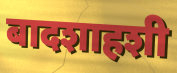
बादशाहशी